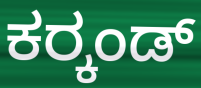
ಕರ್‍ಕಂಡ್